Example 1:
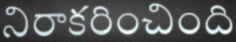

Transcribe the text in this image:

నిరాకరించింది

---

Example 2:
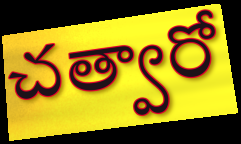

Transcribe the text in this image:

చత్వారో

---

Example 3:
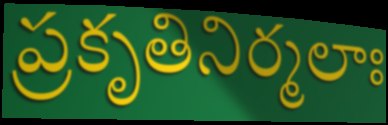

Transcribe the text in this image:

ప్రకృతినిర్మలాః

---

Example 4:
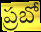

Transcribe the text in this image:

ప్రబో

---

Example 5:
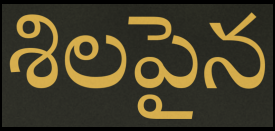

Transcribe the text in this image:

శిలపైన